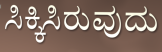
ಸಿಕ್ಕಿಸಿರುವುದು